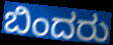
ಬಿಂದರು